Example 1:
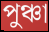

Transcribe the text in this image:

পুঞ্চা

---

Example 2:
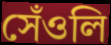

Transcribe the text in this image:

সেঁওলি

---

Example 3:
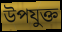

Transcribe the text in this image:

উপযুক্ত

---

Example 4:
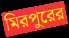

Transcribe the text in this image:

মিরপুরের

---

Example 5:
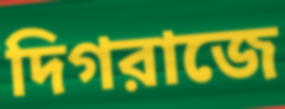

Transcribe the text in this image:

দিগরাজে